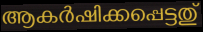
ആകർഷിക്കപ്പെട്ടതു്